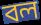
বল